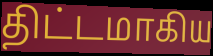
திட்டமாகிய